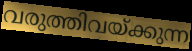
വരുത്തിവയ്ക്കുന്ന